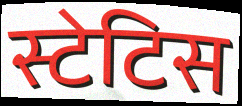
स्टेटिस